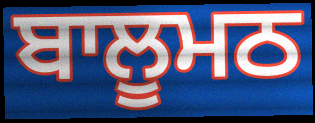
ਬਾਲੂਮਠ